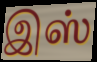
இஸ்